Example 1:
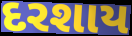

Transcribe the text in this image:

દરશાય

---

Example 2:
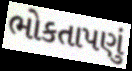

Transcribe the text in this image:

ભોકતાપણું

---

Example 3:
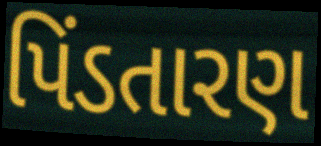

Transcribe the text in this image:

પિંડતારણ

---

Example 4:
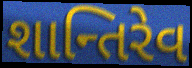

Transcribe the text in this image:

શાન્તિરેવ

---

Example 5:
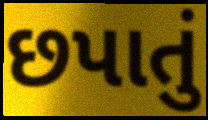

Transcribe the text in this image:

છપાતું